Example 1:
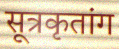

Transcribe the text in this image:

सूत्रकृतांग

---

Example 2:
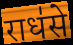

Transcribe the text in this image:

राध॑से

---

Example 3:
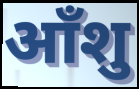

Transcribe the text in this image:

आँशु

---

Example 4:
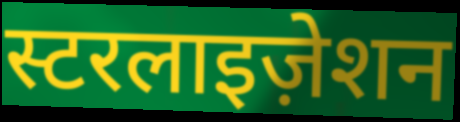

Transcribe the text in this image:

स्टरलाइज़ेशन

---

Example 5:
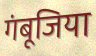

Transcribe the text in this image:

गंबूजिया